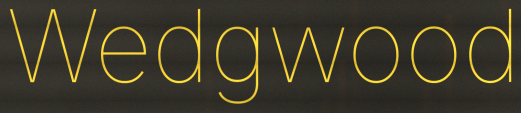
Wedgwood